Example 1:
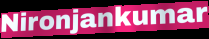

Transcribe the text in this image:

Nironjankumar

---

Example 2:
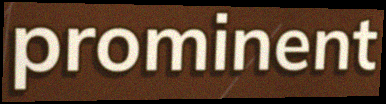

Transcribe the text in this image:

prominent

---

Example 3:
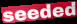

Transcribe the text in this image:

seeded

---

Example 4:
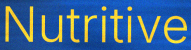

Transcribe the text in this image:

Nutritive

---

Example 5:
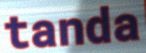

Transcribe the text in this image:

tanda